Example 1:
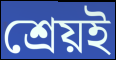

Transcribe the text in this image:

শ্রেয়ই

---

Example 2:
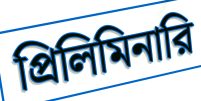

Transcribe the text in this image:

প্রিলিমিনারি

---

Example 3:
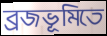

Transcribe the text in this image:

ব্রজভূমিতে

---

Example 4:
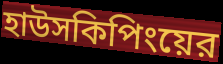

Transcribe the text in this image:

হাউসকিপিংয়ের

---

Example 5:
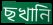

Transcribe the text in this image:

ছখানি